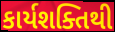
કાર્યશક્તિથી